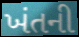
ખંતની